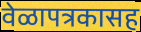
वेळापत्रकासह